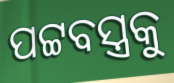
ପଟ୍ଟବସ୍ତ୍ରକୁ